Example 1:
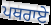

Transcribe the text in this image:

ਪਥਰਾਏ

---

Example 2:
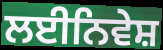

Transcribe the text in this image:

ਲਈਨਿਵੇਸ਼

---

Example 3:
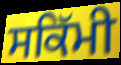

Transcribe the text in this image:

ਸਕਿੱਮੀ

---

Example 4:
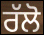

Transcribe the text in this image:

ਰੱਲੋ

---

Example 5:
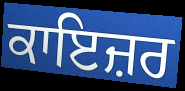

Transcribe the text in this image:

ਕਾਇਜ਼ਰ